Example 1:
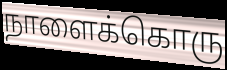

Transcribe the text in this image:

நாளைக்கொரு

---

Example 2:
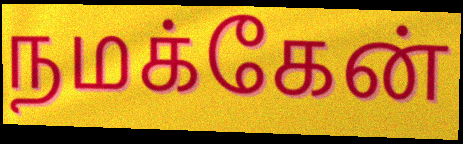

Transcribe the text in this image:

நமக்கேன்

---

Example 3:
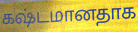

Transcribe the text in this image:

கஷ்டமானதாக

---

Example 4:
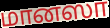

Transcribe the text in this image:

மானஸா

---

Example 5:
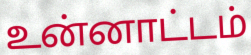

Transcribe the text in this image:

உன்னாட்டம்